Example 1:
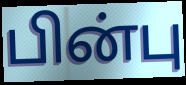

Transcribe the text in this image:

பின்பு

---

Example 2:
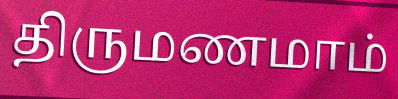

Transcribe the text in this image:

திருமணமாம்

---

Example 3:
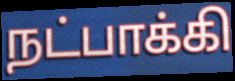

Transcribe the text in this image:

நட்பாக்கி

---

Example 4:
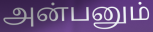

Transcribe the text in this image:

அன்பனும்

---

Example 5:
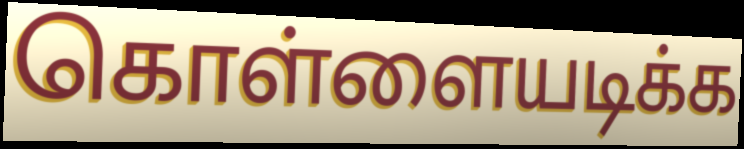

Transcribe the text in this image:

கொள்ளையடிக்க